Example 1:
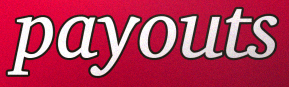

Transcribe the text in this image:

payouts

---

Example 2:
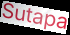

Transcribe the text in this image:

Sutapa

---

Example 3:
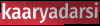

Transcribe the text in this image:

kaaryadarsi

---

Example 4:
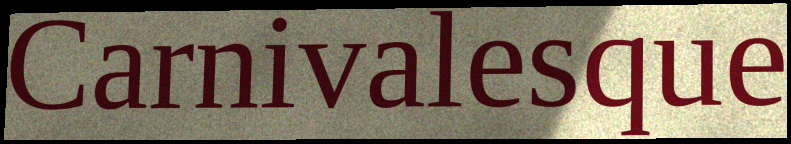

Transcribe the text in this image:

Carnivalesque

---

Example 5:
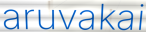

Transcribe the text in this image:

aruvakai